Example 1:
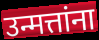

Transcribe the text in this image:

उन्मत्तांना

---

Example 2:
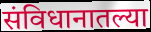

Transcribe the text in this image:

संविधानातल्या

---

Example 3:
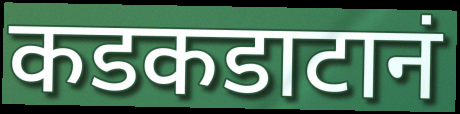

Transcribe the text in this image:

कडकडाटानं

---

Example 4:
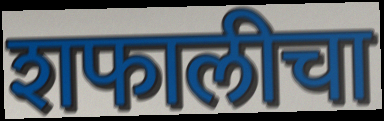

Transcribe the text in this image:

शफालीचा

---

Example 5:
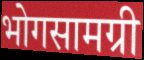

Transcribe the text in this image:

भोगसामग्री